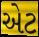
એટ